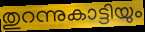
തുറന്നുകാട്ടിയും